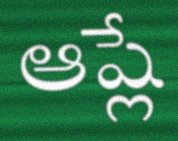
ఆష్లే